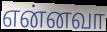
என்னவா